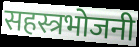
सहस्त्रभोजनी